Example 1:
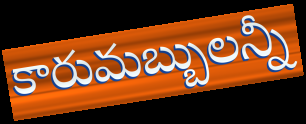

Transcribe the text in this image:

కారుమబ్బులన్నీ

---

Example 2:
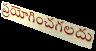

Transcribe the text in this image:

ప్రయోగించగలదు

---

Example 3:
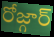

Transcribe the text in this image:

రోజ్గార్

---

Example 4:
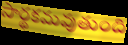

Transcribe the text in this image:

సార్థకమవుతుంది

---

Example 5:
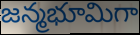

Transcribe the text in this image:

జన్మభూమిగా